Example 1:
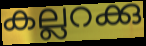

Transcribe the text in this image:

കല്ലറക്കു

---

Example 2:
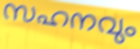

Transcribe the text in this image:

സഹനവും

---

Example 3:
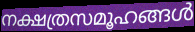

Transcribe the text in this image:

നക്ഷത്രസമൂഹങ്ങൾ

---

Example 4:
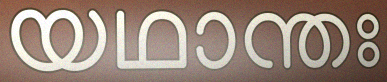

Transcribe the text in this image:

യഥാന്തഃ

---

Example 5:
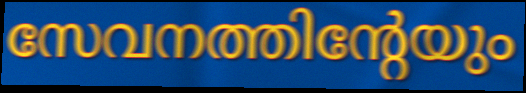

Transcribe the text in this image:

സേവനത്തിന്റേയും